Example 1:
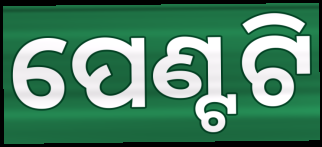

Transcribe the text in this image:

ପେଣ୍ଟଟି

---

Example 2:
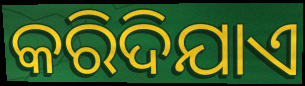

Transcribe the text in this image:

କରିଦିଯାଏ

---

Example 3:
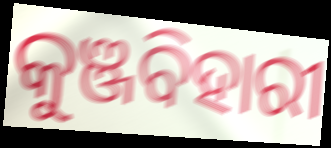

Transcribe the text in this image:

କୁଞ୍ଜବିହାରୀ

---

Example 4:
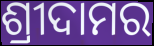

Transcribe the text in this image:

ଶ୍ରୀଦାମର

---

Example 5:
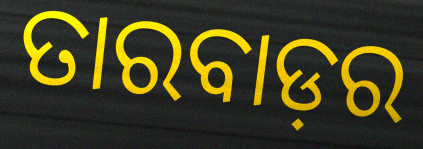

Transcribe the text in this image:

ତାରବାଡ଼ର